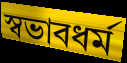
স্বভাবধর্ম